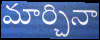
మార్చినా